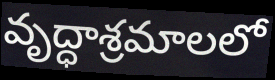
వృద్ధాశ్రమాలలో